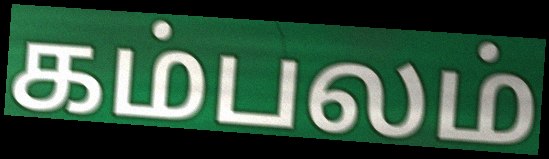
கம்பலம்